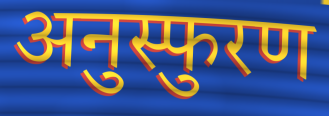
अनुस्फुरण